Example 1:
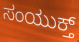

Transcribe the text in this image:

ಸಂಯುಕ್ತ್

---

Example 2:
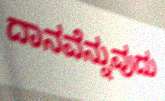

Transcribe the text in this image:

ದಾನವೆನ್ನುವುದು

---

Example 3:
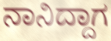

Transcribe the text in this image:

ನಾನಿದ್ದಾಗ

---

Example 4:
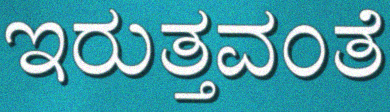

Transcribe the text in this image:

ಇರುತ್ತವಂತೆ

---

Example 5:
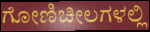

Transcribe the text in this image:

ಗೋಣಿಚೀಲಗಳಲ್ಲಿ